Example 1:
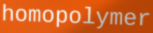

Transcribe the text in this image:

homopolymer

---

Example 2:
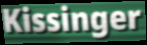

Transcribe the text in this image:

Kissinger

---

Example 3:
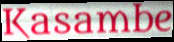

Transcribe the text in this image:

Kasambe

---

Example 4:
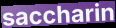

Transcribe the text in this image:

saccharin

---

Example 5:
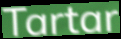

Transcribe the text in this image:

Tartar